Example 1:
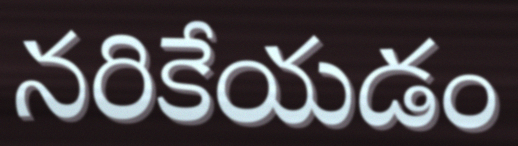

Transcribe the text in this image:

నరికేయడం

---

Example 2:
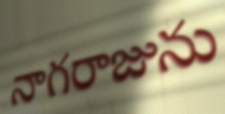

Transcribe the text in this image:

నాగరాజును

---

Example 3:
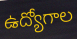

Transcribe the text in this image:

ఉద్యోగాల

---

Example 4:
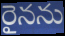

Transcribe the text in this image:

రైనను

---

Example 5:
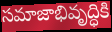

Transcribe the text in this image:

సమాజాభివృద్ధికి